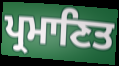
ਪ੍ਰਮਾਣਿਤ